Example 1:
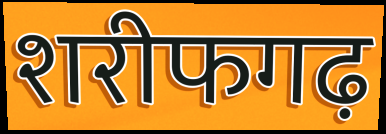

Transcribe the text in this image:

शरीफगढ़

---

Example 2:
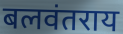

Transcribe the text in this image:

बलवंतराय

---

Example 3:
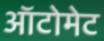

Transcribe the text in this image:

ऑटोमेट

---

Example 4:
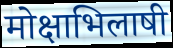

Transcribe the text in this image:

मोक्षाभिलाषी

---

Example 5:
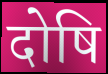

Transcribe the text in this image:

दोषि